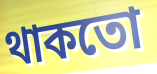
থাকতো